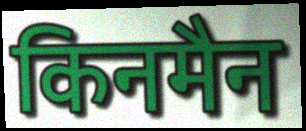
किनमैन